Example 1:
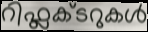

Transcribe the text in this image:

റിഫ്ലക്ടറുകൾ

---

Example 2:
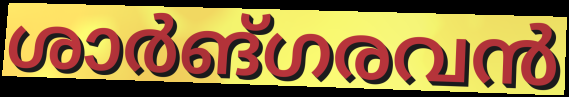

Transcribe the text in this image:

ശാർങ്ഗരവൻ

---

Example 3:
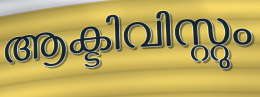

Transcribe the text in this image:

ആക്ടിവിസ്റ്റും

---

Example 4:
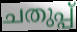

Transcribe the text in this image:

ചതുപ്പ്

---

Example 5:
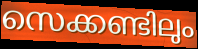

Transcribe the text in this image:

സെക്കണ്ടിലും